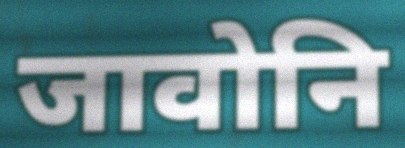
जावोनि